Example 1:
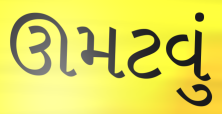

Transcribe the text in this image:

ઊમટવું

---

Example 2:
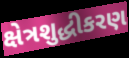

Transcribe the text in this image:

ક્ષેત્રશુદ્ધીકરણ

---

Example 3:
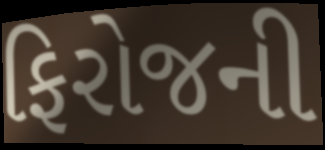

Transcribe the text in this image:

ફિરોજની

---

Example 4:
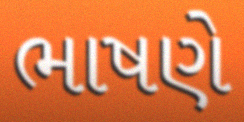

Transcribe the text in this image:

ભાષણે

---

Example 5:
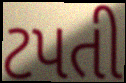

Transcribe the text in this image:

ટપતી